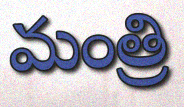
మంత్రి